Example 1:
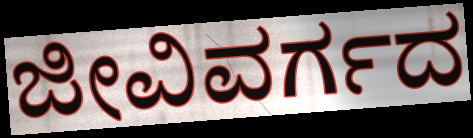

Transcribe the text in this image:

ಜೀವಿವರ್ಗದ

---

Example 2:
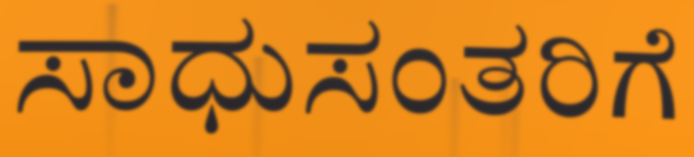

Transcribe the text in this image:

ಸಾಧುಸಂತರಿಗೆ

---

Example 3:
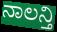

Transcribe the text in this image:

ನಾಲನ್ತಿ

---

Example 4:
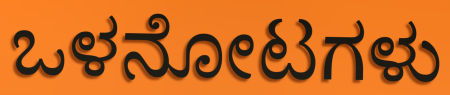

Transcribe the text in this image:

ಒಳನೋಟಗಳು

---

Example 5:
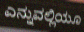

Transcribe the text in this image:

ಎನ್ನುವಲ್ಲಿಯೂ